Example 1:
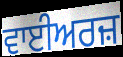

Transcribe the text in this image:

ਵਾਈਅਰਜ਼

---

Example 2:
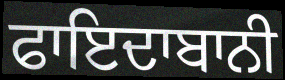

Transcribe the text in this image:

ਫਾਇਦਾਬਾਨੀ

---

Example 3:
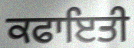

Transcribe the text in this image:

ਕਫਾਇਤੀ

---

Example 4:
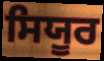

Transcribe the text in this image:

ਸਿਯੂਰ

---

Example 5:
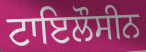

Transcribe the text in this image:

ਟਾਇਲੌਸੀਨ